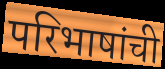
परिभाषांची